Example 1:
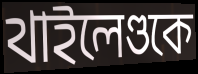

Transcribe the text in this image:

থাইলেণ্ডকে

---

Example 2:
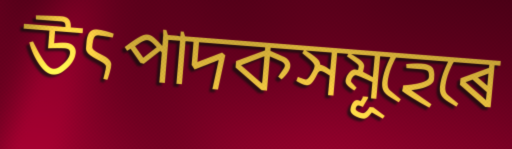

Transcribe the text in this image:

উৎপাদকসমূহেৰে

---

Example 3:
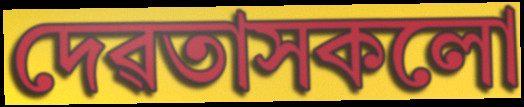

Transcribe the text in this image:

দেৱতাসকলো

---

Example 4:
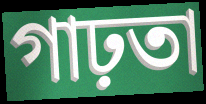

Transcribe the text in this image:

গাঢ়তা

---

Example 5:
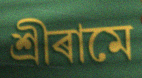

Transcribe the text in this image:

শ্ৰীৰামে